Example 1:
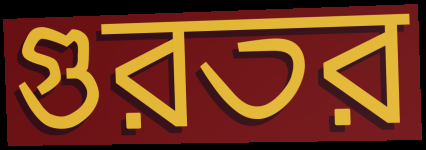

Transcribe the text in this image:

গুরতর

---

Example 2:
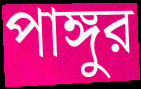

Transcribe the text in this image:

পাঙ্গুর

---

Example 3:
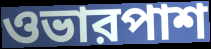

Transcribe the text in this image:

ওভারপাশ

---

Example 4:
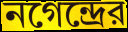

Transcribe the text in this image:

নগেন্দ্রের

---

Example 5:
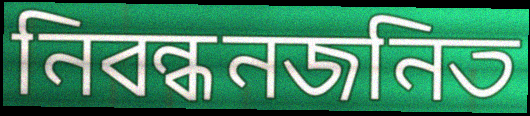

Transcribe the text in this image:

নিবন্ধনজনিত